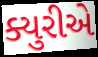
ક્યુરીએ